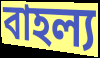
বাহল্য